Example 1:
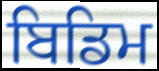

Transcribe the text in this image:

ਬਿਡਿਮ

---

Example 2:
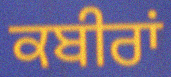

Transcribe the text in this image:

ਕਬੀਰਾਂ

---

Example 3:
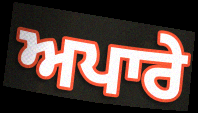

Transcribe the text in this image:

ਅਪਾਰੇ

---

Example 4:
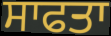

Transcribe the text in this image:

ਸਾਫਤਾ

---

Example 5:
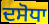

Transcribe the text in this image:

ਦਸੋਧਾ